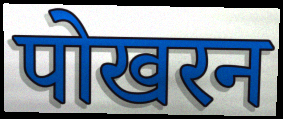
पोखरन